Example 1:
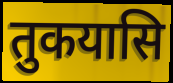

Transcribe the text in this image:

तुकयासि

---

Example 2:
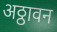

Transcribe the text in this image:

अठ्ठावन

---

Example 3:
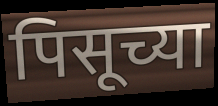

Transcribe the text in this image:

पिसूच्या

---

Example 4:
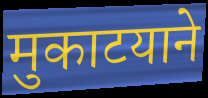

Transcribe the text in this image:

मुकाटयाने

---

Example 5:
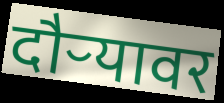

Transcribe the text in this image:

दौऱ्यावर